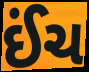
ઈંચ